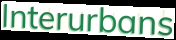
Interurbans